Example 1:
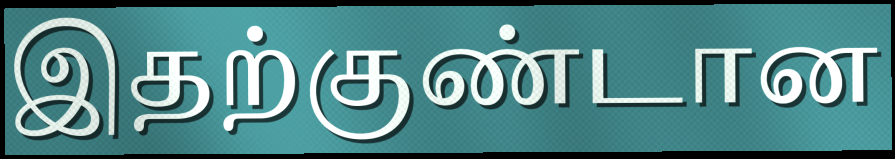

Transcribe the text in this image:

இதற்குண்டான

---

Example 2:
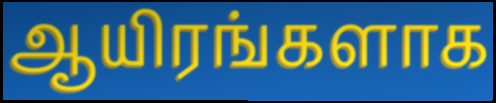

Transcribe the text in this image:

ஆயிரங்களாக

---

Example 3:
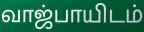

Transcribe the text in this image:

வாஜ்பாயிடம்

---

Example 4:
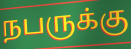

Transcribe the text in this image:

நபருக்கு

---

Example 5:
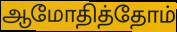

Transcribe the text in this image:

ஆமோதித்தோம்